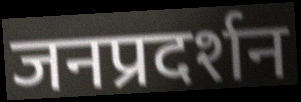
जनप्रदर्शन